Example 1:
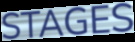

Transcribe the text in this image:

STAGES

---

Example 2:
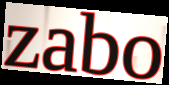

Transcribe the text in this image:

zabo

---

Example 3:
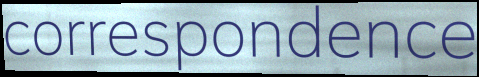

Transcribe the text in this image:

correspondence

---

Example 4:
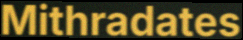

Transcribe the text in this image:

Mithradates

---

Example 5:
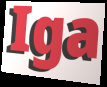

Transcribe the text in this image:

Iga